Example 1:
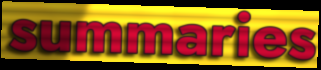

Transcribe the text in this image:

summaries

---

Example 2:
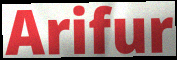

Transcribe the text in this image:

Arifur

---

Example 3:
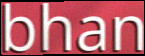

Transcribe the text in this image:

bhan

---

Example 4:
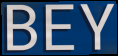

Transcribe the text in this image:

BEY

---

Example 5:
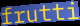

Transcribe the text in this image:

frutti